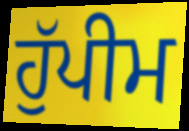
ਹੁੱਪੀਮ